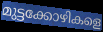
മുട്ടക്കോഴികളെ